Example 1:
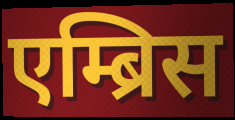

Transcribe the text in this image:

एम्ब्रिस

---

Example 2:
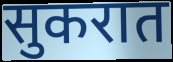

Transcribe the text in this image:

सुकरात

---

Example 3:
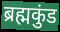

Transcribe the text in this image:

ब्रह्मकुंड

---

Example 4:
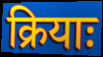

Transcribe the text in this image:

क्रियाः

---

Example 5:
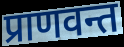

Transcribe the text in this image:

प्राणवन्त